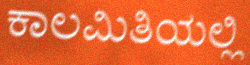
ಕಾಲಮಿತಿಯಲ್ಲಿ